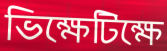
ভিক্ষেটিক্ষে